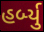
હર્બ્યુ